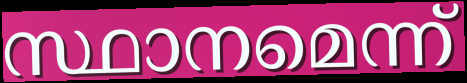
സ്ഥാനമെന്ന്